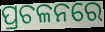
ପ୍ରଚଳନରେ